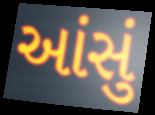
આંસું